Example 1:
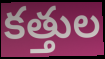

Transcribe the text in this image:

కత్తుల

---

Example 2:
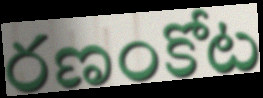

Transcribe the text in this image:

రణంకోట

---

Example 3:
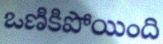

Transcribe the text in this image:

ఒణికిపోయింది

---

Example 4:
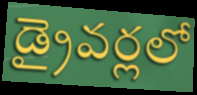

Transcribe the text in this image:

డ్రైవర్లలో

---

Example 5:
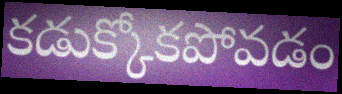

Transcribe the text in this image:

కడుక్కోకపోవడం